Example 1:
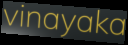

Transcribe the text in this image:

vinayaka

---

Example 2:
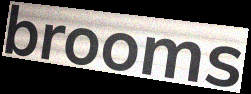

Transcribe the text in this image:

brooms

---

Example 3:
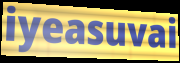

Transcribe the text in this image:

iyeasuvai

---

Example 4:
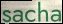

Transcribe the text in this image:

sacha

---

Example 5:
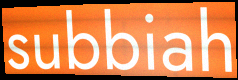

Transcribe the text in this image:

subbiah